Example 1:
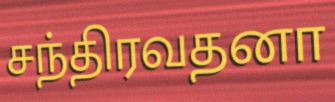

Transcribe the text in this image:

சந்திரவதனா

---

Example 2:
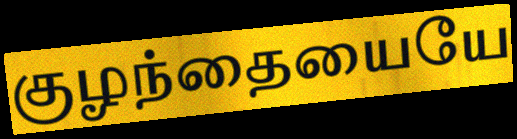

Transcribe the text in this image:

குழந்தையையே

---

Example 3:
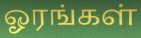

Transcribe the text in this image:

ஓரங்கள்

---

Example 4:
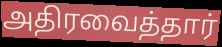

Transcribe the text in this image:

அதிரவைத்தார்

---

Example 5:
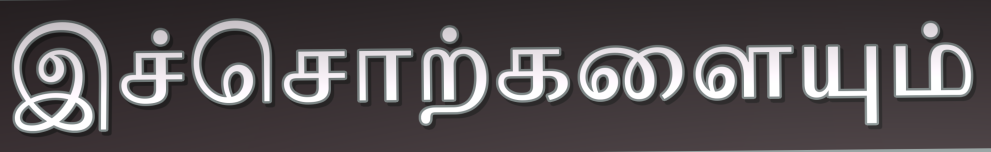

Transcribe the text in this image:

இச்சொற்களையும்